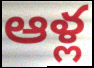
ఆళ్ల